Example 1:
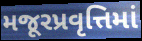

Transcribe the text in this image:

મજૂરપ્રવૃત્તિમાં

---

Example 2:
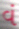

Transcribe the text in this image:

વં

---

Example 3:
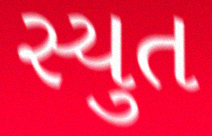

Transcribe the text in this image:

સ્યુત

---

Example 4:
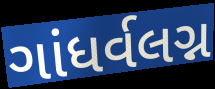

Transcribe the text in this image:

ગાંધર્વલગ્ન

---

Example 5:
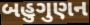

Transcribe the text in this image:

બહુગુણન